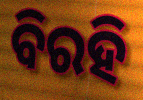
ବିରହି